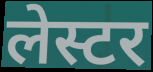
लेस्टर